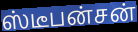
ஸ்டீபன்சன்